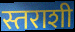
स्तराशी